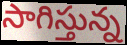
సాగిస్తున్న